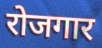
रोजगार